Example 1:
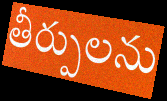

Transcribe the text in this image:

తీర్పులను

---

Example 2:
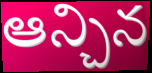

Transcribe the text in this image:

ఆన్చిన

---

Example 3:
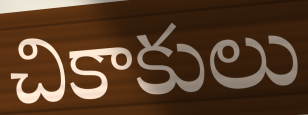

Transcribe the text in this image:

చికాకులు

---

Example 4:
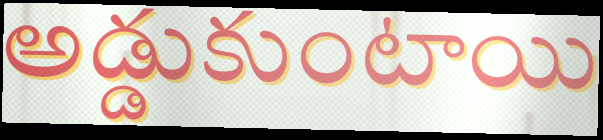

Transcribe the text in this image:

అడ్డుకుంటాయి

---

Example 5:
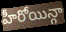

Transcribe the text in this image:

హీరోయిన్గా